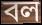
বল